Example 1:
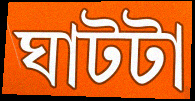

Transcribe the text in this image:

ঘাটটা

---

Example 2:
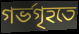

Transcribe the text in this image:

গর্ভগৃহতে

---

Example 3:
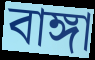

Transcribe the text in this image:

বাঙ্গা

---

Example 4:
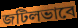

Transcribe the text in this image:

জটিলভাবে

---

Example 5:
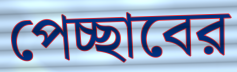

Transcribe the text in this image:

পেচ্ছাবের